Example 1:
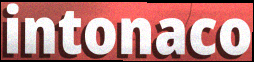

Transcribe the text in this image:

intonaco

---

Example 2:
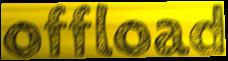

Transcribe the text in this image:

offload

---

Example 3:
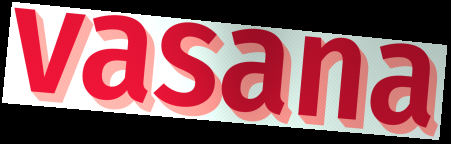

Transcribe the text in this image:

vasana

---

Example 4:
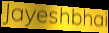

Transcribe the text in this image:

Jayeshbhai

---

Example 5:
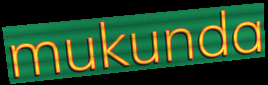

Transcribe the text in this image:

mukunda